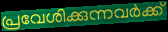
പ്രവേശിക്കുന്നവർക്ക്